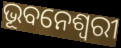
ଭୂବନେଶ୍ୱରୀ